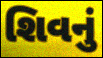
શિવનું